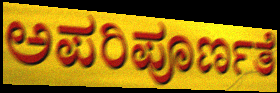
ಅಪರಿಪೂರ್ಣತೆ